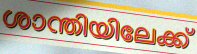
ശാന്തിയിലേക്ക്